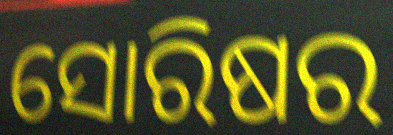
ସୋରିଷର